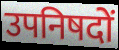
उपनिषदों